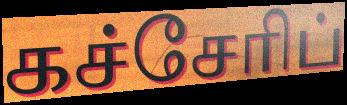
கச்சேரிப்